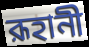
রূহানী